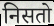
निसतो